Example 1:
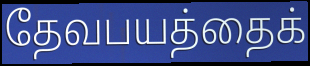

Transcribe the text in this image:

தேவபயத்தைக்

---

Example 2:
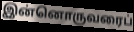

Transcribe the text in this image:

இன்னொருவரைப்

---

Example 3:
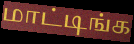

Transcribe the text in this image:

மாட்டிங்க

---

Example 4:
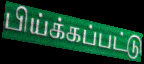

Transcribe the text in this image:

பிய்க்கப்பட்டு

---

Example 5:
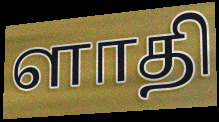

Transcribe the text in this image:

ளாதி